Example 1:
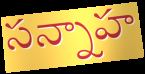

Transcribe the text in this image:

సన్నాహ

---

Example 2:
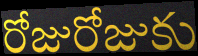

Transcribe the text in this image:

రోజురోజుకు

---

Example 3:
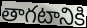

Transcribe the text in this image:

తాగటానికి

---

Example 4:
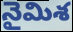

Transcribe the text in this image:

నైమిశ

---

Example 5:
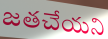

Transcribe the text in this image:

జతచేయని